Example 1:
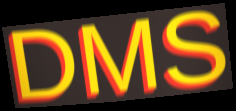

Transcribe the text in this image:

DMS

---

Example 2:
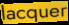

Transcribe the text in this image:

lacquer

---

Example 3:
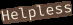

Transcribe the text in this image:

Helpless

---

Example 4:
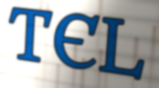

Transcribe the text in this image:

TEL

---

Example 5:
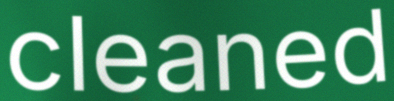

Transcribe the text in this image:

cleaned